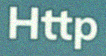
Http